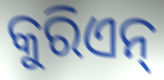
କୁରିଏନ୍